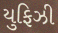
યુફિઝી